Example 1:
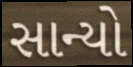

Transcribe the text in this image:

સાન્યો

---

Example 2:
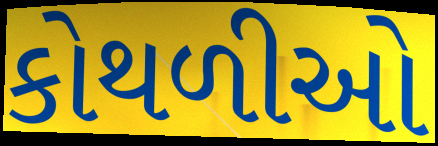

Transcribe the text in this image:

કોથળીઓ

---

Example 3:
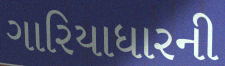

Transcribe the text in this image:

ગારિયાધારની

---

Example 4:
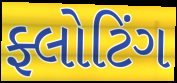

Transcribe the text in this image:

ફ્લોટિંગ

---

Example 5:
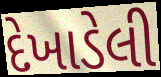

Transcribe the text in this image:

દેખાડેલી